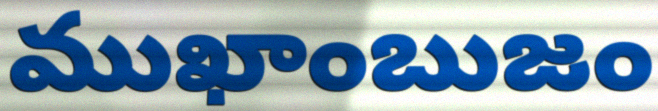
ముఖాంబుజం